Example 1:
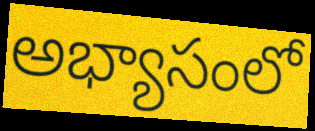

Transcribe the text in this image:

అభ్యాసంలో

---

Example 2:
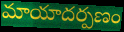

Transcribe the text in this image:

మాయాదర్పణం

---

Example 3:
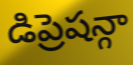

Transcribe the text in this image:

డిప్రెషన్గా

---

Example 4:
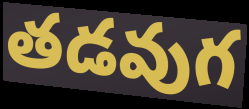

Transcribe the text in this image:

తడవుగ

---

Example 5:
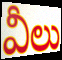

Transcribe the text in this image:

వీలు